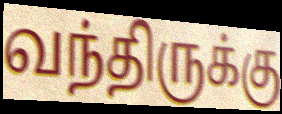
வந்திருக்கு